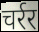
चर्रर